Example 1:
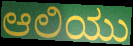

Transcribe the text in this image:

ಆಲಿಯು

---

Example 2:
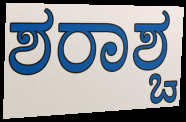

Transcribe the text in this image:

ಶರಾಶ್ಚ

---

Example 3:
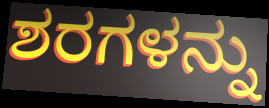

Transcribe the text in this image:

ಶರಗಳನ್ನು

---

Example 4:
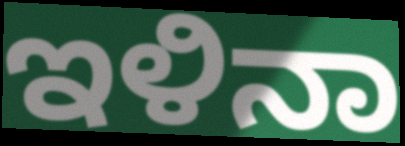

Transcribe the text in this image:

ಇಳಿನಾ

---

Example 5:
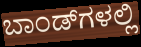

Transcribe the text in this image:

ಬಾಂಡ್‌ಗಳಲ್ಲಿ